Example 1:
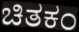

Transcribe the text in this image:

ಚಿತಕಂ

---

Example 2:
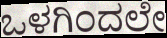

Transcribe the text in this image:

ಒಳಗಿಂದಲೇ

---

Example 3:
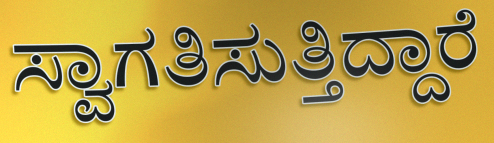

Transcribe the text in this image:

ಸ್ವಾಗತಿಸುತ್ತಿದ್ದಾರೆ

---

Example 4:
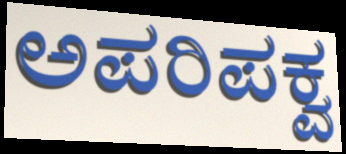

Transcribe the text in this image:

ಅಪರಿಪಕ್ವ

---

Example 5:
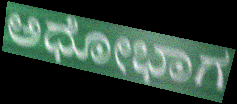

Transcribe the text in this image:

ಅಧೋಭಾಗ